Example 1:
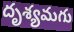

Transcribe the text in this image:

దృశ్యమగు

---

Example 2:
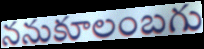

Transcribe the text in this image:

ననుకూలంబగు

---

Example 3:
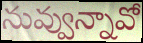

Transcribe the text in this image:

నువ్వున్నావో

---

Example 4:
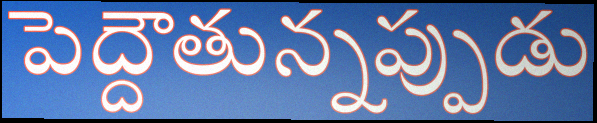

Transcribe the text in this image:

పెద్దౌతున్నప్పుడు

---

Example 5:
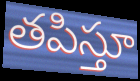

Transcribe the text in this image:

తపిస్తూ